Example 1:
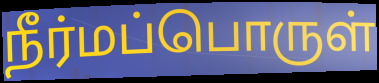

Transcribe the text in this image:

நீர்மப்பொருள்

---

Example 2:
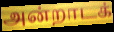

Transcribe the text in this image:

அன்றாடக்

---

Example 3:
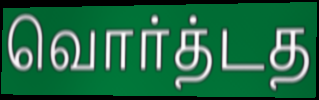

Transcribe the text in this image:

வொர்த்டத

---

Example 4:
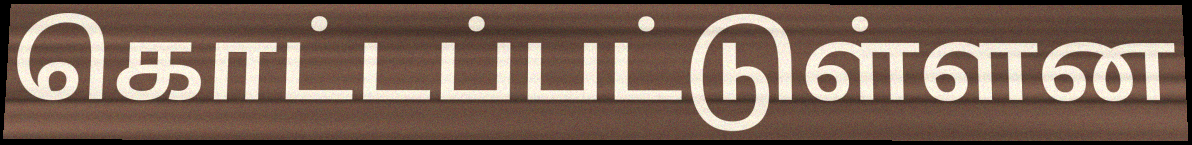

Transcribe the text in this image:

கொட்டப்பட்டுள்ளன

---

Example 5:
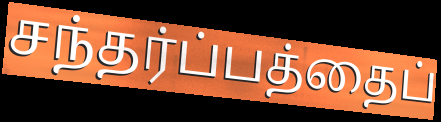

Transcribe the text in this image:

சந்தர்ப்பத்தைப்